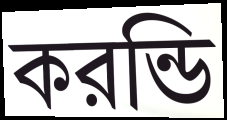
করন্ডি